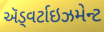
ઍડ્વર્ટાઇઝમેન્ટ